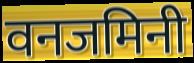
वनजमिनी